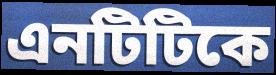
এনটিটিকে